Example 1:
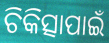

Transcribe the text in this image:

ଚିକିତ୍ସାପାଇଁ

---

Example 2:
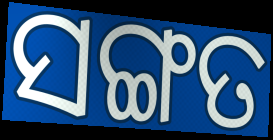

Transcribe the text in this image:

ସଙ୍ଗତ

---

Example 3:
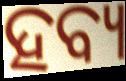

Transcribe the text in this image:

ହବ୍ୟ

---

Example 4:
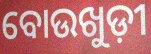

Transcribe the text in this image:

ବୋଉଖୁଡ଼ୀ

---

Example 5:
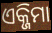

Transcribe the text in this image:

ଏକ୍ଜିମା